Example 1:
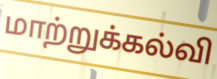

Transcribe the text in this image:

மாற்றுக்கல்வி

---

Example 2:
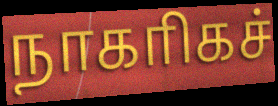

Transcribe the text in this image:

நாகரிகச்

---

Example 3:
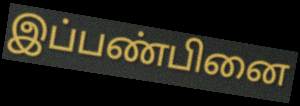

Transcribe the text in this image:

இப்பண்பினை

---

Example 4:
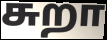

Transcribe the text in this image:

சுறா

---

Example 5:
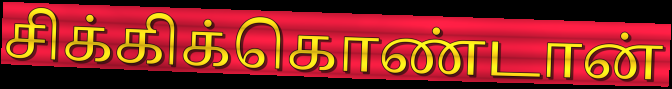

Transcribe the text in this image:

சிக்கிக்கொண்டான்